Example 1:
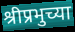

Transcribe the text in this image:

श्रीप्रभुच्या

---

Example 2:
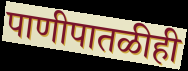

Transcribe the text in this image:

पाणीपातळीही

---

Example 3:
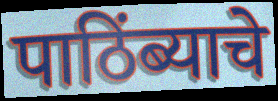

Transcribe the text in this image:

पाठिंब्याचे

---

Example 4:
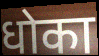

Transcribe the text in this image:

धोका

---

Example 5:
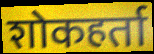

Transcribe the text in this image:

शोकहर्ता